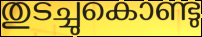
തുടച്ചുകൊണ്ടു